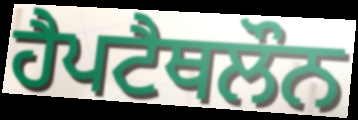
ਹੈਪਟੈਥਲੌਨ